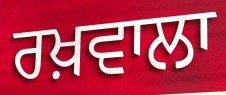
ਰਖ਼ਵਾਲਾ